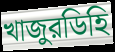
খাজুরডিহি